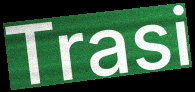
Trasi